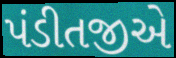
પંડીતજીએ